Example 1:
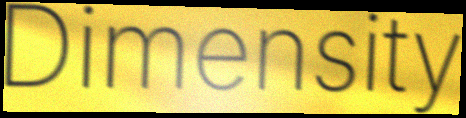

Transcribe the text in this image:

Dimensity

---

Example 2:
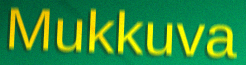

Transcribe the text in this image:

Mukkuva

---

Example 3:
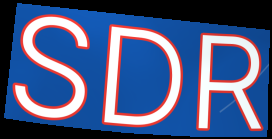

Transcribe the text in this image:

SDR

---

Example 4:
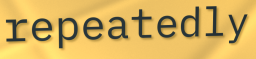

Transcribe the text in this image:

repeatedly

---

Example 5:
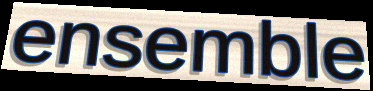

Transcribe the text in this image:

ensemble